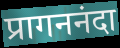
प्रागननंदा